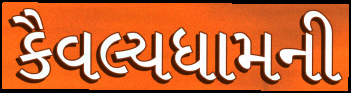
કૈવલ્યધામની